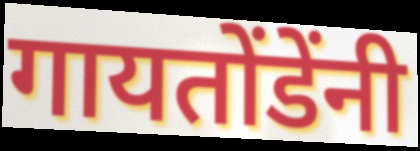
गायतोंडेंनी